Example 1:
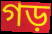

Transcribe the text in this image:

গড়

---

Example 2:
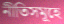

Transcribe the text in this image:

নীতিসমূহে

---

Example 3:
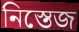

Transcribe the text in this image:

নিস্তেজ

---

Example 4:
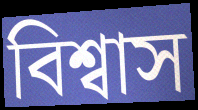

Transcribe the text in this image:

বিশ্বাস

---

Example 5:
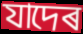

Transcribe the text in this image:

যাদেৰ